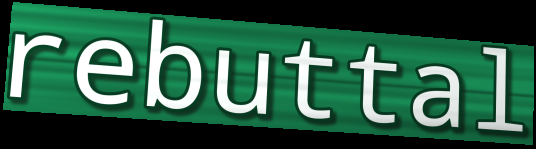
rebuttal